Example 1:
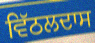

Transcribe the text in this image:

ਵਿੱਠਲਦਾਸ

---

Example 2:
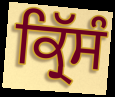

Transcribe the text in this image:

ਕ੍ਰਿੱਸੰ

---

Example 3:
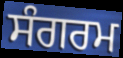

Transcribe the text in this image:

ਸੰਗਰਮ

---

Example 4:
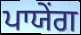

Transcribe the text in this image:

ਪਾਯੇਂਗ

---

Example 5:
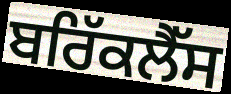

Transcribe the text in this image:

ਬਰਿੱਕਲੈੱਸ